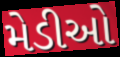
મેડીઓ